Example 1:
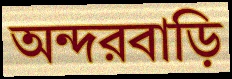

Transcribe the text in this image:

অন্দরবাড়ি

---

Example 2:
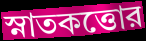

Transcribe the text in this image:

স্নাতকত্তোর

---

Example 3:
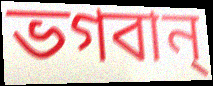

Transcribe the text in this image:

ভগবান্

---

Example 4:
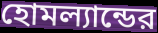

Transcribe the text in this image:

হোমল্যান্ডের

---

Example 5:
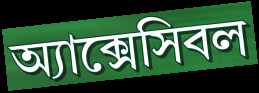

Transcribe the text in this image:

অ্যাক্সেসিবল